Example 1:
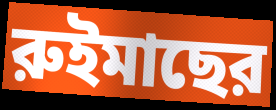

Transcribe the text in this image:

রুইমাছের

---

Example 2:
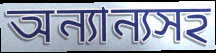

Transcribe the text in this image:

অন্যান্যসহ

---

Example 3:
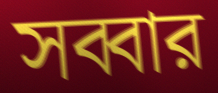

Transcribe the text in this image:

সব্বার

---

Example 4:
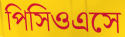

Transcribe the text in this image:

পিসিওএসে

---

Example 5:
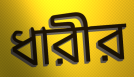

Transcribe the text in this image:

ধারীর